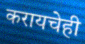
करायचेही